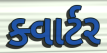
ક્વાર્ટર